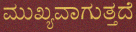
ಮುಖ್ಯವಾಗುತ್ತದೆ